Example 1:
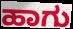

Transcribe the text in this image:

ಹಾಗು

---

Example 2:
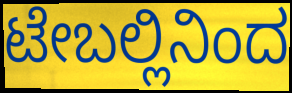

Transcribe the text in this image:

ಟೇಬಲ್ಲಿನಿಂದ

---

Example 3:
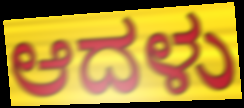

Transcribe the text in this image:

ಆದಳು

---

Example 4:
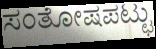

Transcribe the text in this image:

ಸಂತೋಷಪಟ್ಟು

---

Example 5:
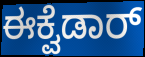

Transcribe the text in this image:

ಈಕ್ವೆಡಾರ್